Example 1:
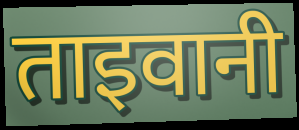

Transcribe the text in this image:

ताइवानी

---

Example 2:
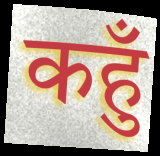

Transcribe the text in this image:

कहुँ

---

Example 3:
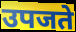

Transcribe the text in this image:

उपजते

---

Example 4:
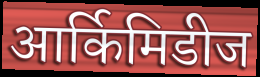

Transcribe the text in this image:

आर्किमिडीज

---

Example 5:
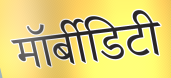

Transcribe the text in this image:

मॉर्बीडिटी